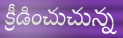
క్రీడించుచున్న